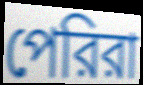
পেরিরা